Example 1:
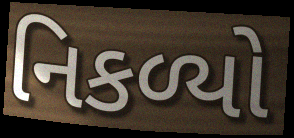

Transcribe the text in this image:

નિકળ્યો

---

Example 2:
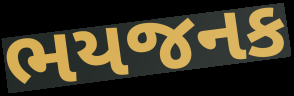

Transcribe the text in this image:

ભયજનક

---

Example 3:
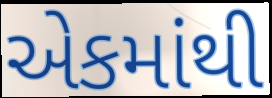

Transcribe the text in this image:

એકમાંથી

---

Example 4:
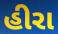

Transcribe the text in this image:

હીરા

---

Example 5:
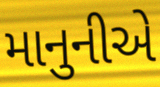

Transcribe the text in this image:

માનુનીએ